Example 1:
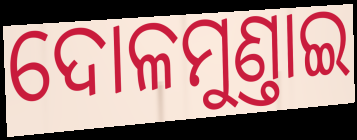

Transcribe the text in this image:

ଦୋଳମୁଣ୍ତାଇ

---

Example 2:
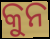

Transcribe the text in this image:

କୁନ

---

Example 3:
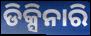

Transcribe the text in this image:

ଡିକ୍ସିନାରି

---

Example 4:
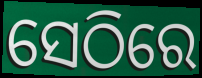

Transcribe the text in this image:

ସେଠିରେ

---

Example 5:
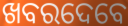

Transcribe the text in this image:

ଖବରଦେବେ